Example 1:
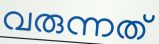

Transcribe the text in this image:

വരുന്നത്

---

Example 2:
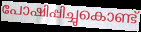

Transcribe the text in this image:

പോഷിപ്പിച്ചുകൊണ്ട്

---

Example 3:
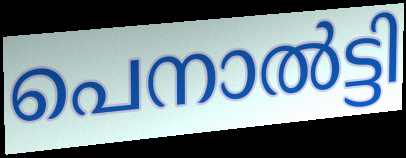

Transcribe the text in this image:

പെനാൽട്ടി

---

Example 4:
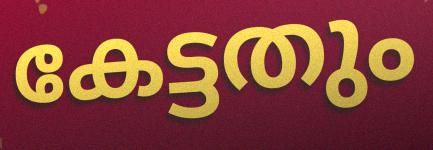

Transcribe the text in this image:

കേട്ടതും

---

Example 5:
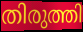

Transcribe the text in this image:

തിരുത്തി